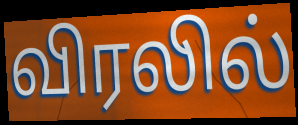
விரலில்